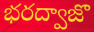
భరద్వాజొ